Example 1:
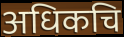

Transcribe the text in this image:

अधिकचि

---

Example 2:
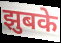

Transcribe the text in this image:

झुबके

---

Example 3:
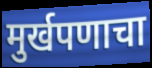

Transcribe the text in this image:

मुर्खपणाचा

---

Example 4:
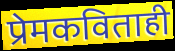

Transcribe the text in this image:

प्रेमकविताही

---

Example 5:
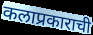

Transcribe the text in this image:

कलाप्रकाराची